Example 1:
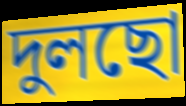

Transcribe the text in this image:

দুলছো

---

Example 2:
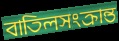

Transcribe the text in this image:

বাতিলসংক্রান্ত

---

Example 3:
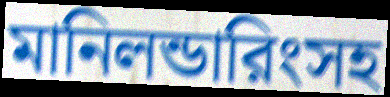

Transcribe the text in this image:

মানিলন্ডারিংসহ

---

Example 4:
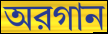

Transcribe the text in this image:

অরগান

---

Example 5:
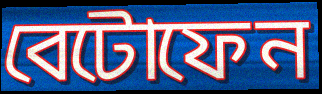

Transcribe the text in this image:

বেটোফেন